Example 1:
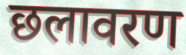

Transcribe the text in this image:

छलावरण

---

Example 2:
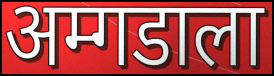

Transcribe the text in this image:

अम्गडाला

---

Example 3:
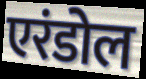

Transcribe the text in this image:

एरंडोल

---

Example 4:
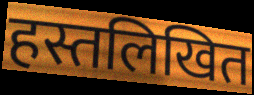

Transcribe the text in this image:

हस्तलिखित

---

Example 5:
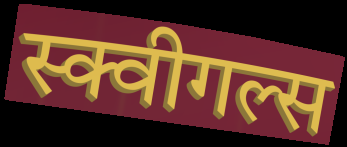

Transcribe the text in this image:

स्क्वीगल्स